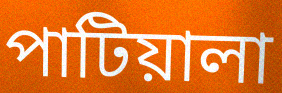
পাটিয়ালা